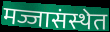
मज्जासंस्थेत